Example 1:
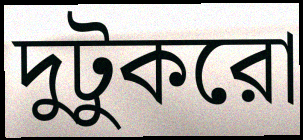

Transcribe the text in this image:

দুটুকরো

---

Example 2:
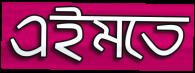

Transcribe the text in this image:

এইমতে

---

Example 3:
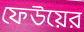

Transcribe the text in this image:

ফেউয়ের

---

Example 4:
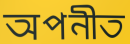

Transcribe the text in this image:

অপনীত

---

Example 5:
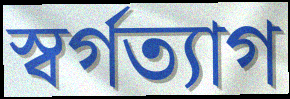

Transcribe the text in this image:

স্বর্গত্যাগ